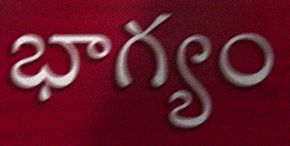
భాగ్యం